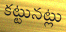
కట్టునట్లు